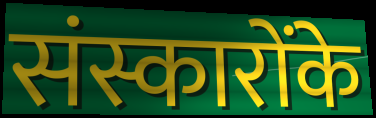
संस्कारोंके